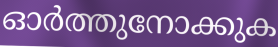
ഓർത്തുനോക്കുക